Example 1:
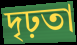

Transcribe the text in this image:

দৃঢ়তা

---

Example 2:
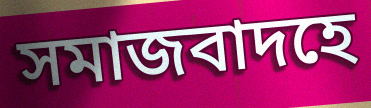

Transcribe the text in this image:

সমাজবাদহে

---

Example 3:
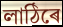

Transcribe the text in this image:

লাঠিৰে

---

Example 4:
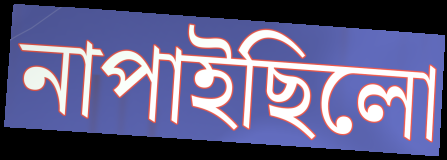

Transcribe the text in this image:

নাপাইছিলো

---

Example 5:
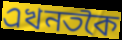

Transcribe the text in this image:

এখনতকৈ